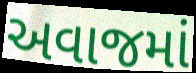
અવાજમાં